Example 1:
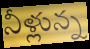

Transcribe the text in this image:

నీళ్లున్న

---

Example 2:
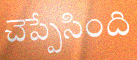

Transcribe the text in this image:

చెప్పేసింది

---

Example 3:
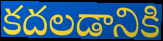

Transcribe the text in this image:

కదలడానికి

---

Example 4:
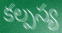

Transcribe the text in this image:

కల్పస్య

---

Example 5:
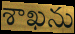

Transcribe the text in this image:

శాఖను